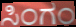
ಸಿಂಗಂ